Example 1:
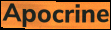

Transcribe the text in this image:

Apocrine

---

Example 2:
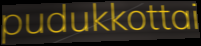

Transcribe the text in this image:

pudukkottai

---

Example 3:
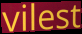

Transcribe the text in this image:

vilest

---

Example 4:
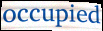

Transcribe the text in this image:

occupied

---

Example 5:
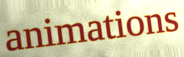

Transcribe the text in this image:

animations